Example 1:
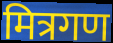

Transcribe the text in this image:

मित्रगण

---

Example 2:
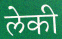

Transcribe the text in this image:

लेकी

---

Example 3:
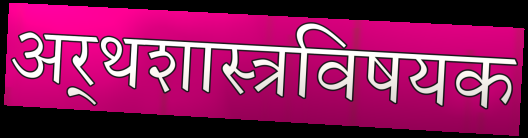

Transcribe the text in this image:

अर्थशास्त्रविषयक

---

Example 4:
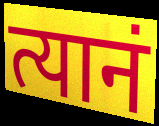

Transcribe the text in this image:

त्यानं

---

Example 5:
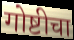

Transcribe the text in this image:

गोष्टीचा